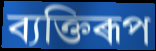
ব্যক্তিৰূপ